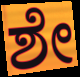
ಶೇ